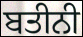
ਬਤੀਨੀ